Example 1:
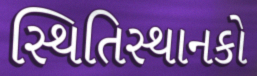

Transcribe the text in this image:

સ્થિતિસ્થાનકો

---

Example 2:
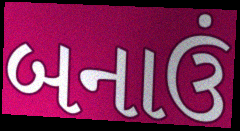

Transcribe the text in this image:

બનાઉં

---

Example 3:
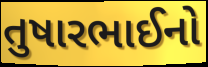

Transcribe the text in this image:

તુષારભાઈનો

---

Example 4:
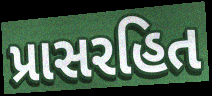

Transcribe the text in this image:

પ્રાસરહિત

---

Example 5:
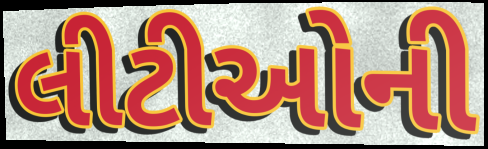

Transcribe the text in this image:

લીટીઓની